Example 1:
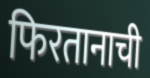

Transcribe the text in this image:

फिरतानाची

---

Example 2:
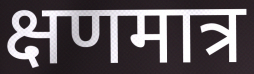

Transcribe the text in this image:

क्षणमात्र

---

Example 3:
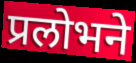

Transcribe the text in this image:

प्रलोभने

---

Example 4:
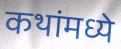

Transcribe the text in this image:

कथांमध्ये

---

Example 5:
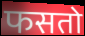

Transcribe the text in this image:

फसतो